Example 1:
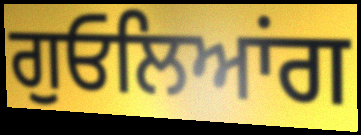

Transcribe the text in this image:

ਗੁਓਲਿਆਂਗ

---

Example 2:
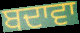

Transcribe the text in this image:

ਬਦਾਵਾ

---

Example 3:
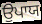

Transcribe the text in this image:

ਉਪਾਯ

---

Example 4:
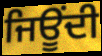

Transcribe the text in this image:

ਜਿਊਂਦੀ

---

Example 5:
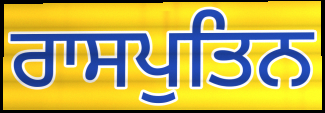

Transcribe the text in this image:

ਰਾਸਪੁਤਿਨ